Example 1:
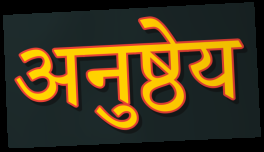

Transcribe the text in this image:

अनुष्ठेय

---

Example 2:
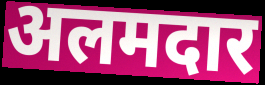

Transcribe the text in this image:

अलमदार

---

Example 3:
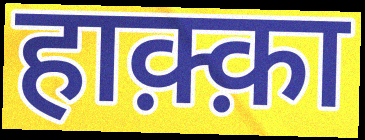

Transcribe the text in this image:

हाक़्क़ा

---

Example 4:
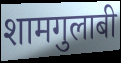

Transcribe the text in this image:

शामगुलाबी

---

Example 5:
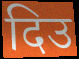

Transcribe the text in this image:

दिउ